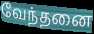
வேந்தனை